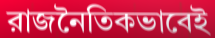
রাজনৈতিকভাবেই